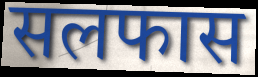
सलफास